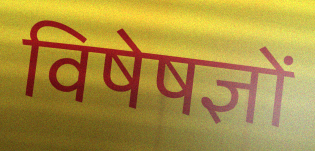
विषेषज्ञों